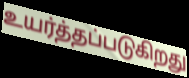
உயர்த்தப்படுகிறது